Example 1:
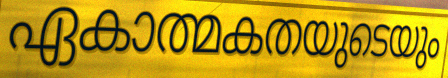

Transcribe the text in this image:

ഏകാത്മകതയുടെയും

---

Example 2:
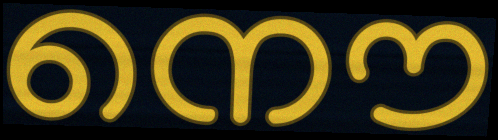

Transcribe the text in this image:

നൌ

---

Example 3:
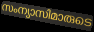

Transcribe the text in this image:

സംന്യാസിമാരുടെ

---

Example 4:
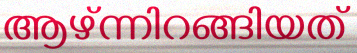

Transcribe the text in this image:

ആഴ്ന്നിറങ്ങിയത്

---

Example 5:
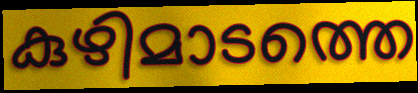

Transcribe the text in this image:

കുഴിമാടത്തെ